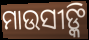
ମାଉସୀଙ୍କି